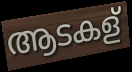
ആടകള്